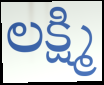
లక్ష్మి